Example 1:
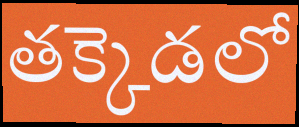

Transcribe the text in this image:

తక్కెడలో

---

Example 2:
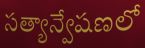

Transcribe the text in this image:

సత్యాన్వేషణలో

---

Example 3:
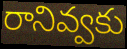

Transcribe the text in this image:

రానివ్వకు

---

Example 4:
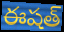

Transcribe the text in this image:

ఈషత్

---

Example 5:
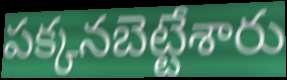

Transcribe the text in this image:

పక్కనబెట్టేశారు